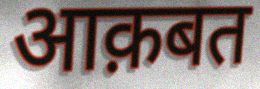
आक़बत